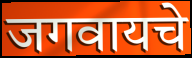
जगवायचे